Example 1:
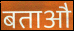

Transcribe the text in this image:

बताऔ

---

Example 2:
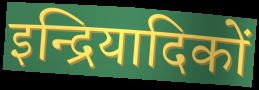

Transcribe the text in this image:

इन्द्रियादिकों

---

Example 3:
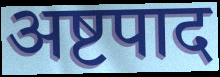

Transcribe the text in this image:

अष्टपाद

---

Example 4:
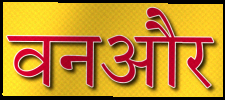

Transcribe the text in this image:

वनऔर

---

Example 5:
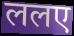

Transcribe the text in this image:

ललए